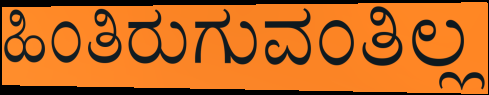
ಹಿಂತಿರುಗುವಂತಿಲ್ಲ